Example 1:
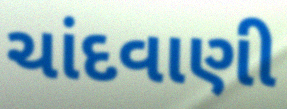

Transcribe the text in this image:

ચાંદવાણી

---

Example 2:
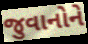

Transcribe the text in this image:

જુવાનોને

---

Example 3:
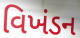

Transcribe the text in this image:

વિખંડન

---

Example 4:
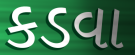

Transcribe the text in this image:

કડવા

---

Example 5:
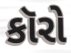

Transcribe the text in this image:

કૉરો